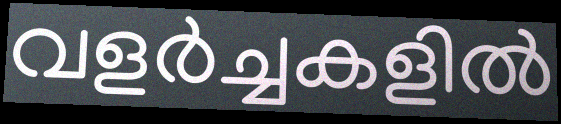
വളർച്ചകളിൽ